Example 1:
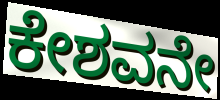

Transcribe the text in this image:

ಕೇಶವನೇ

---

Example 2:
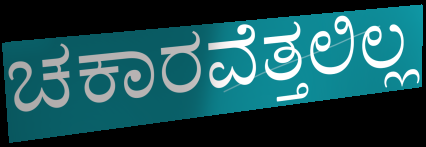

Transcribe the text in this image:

ಚಕಾರವೆತ್ತಲಿಲ್ಲ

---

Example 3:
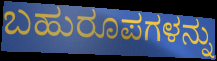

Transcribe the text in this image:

ಬಹುರೂಪಗಳನ್ನು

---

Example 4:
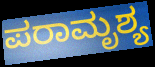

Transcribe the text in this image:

ಪರಾಮೃಶ್ಯ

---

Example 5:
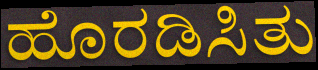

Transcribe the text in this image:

ಹೊರಡಿಸಿತು